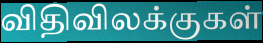
விதிவிலக்குகள்